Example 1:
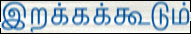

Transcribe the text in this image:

இறக்கக்கூடும்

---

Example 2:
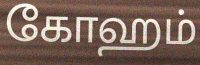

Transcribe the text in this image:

கோஹம்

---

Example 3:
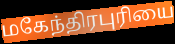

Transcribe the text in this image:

மகேந்திரபுரியை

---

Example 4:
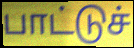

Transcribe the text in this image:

பாட்டுச்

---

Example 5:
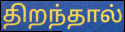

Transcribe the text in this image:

திறந்தால்